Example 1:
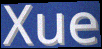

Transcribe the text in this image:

Xue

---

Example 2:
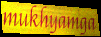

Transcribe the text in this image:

mukhyamga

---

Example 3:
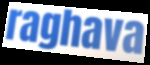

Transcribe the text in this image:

raghava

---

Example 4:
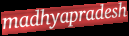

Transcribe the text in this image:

madhyapradesh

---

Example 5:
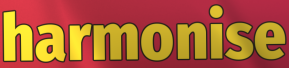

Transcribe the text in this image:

harmonise